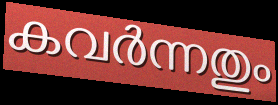
കവർന്നതും